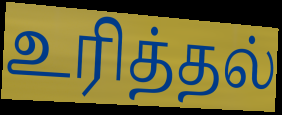
உரித்தல்